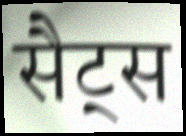
सैट्स